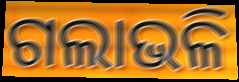
ଗଲାଭଳି